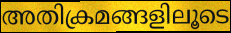
അതിക്രമങ്ങളിലൂടെ